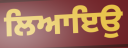
ਲਿਆਇਉ